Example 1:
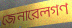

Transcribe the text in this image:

জেনারেলগণ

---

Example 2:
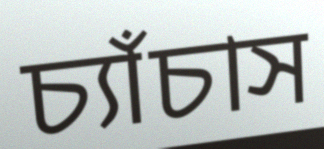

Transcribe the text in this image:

চ্যাঁচাস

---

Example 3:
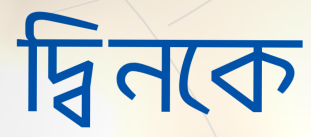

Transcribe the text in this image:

দ্বিনকে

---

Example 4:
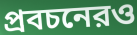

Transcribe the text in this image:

প্রবচনেরও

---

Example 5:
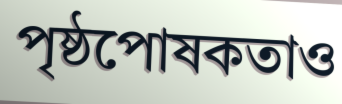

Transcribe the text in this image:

পৃষ্ঠপোষকতাও